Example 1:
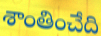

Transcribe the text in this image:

శాంతించేది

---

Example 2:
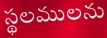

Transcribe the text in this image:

స్థలములను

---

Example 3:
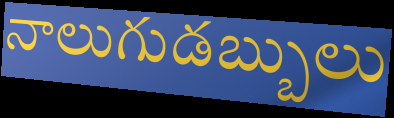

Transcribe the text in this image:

నాలుగుడబ్బులు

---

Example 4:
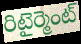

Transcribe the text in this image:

రిటైర్మెంట్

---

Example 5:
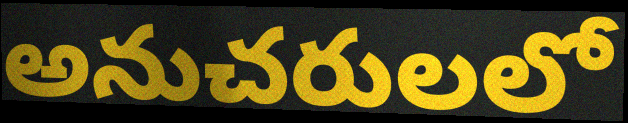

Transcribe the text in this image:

అనుచరులలో